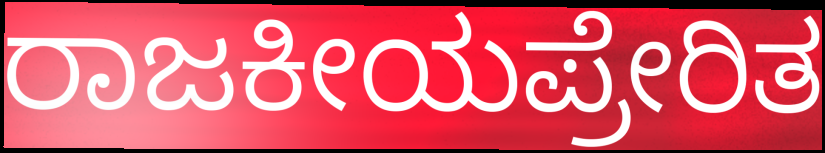
ರಾಜಕೀಯಪ್ರೇರಿತ